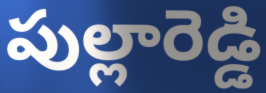
పుల్లారెడ్డి